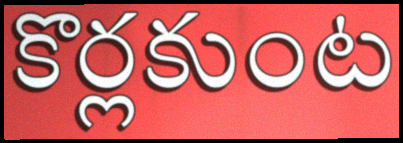
కొర్లకుంట